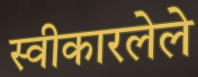
स्वीकारलेले